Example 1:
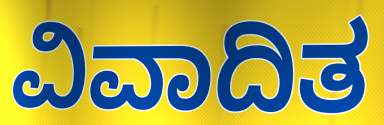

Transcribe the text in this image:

ವಿವಾದಿತ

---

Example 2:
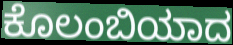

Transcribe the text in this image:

ಕೊಲಂಬಿಯಾದ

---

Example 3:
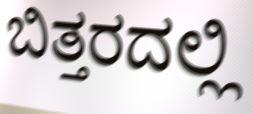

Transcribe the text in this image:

ಬಿತ್ತರದಲ್ಲಿ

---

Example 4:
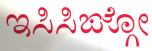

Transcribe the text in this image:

ಇಸಿಸಿಙ್ಗೋ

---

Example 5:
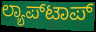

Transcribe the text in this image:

ಲ್ಯಾಪ್‌ಟಾಪ್